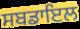
ਸਬਡਾਇਲ